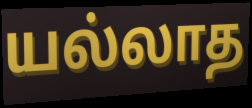
யல்லாத